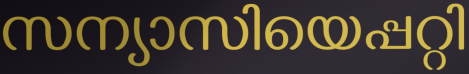
സന്യാസിയെപ്പറ്റി